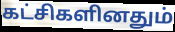
கட்சிகளினதும்